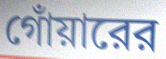
গোঁয়ারের